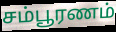
சம்பூரணம்